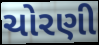
ચોરણી